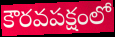
కౌరవపక్షంలో